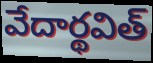
వేదార్థవిత్